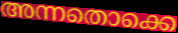
അന്നതൊക്കെ